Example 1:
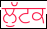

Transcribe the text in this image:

ਲੁੱਟਕ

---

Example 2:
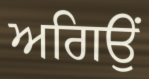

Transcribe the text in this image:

ਅਗਿਉਂ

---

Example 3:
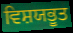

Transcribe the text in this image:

ਵਿਸ਼ਯਭੂਤ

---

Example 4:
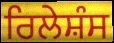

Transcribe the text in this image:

ਰਿਲੇਸ਼ੰਸ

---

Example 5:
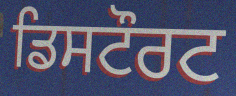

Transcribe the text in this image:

ਡਿਸਟੌਰਟ